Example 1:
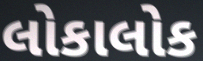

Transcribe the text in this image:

લોકાલોક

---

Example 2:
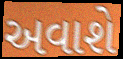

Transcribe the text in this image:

અવાશે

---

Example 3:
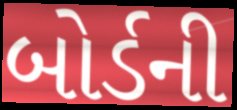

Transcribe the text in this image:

બોર્ડની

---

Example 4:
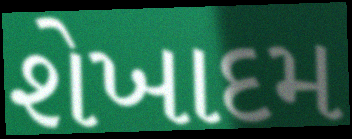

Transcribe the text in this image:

શેખાદમ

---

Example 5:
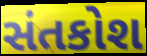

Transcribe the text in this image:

સંતકોશ